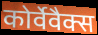
कोर्वेवैक्स